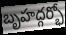
బృహద్గర్భో